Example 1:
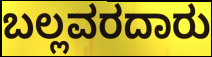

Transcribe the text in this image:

ಬಲ್ಲವರದಾರು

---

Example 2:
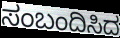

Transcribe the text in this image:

ಸಂಬಂದಿಸಿದ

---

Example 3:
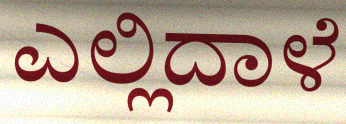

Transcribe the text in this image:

ಎಲ್ಲಿದಾಳೆ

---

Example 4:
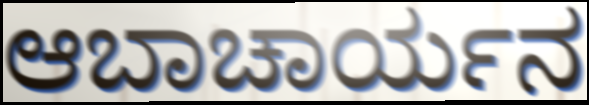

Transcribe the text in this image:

ಆಬಾಚಾರ್ಯನ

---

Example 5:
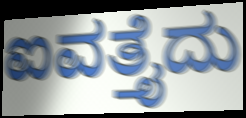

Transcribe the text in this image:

ಐವತ್ತೈದು